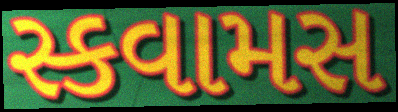
સ્કવામસ